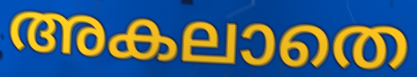
അകലാതെ